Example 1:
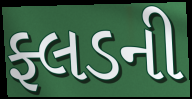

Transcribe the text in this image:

ફ્લડની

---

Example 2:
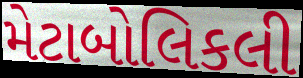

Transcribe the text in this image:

મેટાબોલિકલી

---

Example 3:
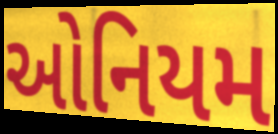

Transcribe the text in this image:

ઓનિયમ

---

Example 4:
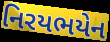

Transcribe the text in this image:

નિરયભયેન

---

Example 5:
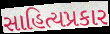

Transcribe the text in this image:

સાહિત્યપ્રકાર